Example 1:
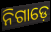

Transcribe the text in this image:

ନିଗାଡ଼େ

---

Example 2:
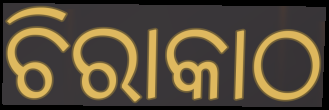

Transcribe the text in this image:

ଚିରାକାଠ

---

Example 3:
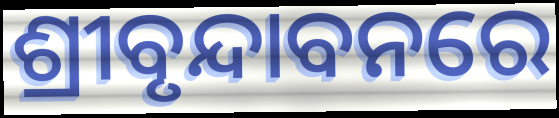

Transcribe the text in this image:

ଶ୍ରୀବୃନ୍ଦାବନରେ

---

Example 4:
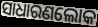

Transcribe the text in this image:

ସାଧାରଣଲୋକ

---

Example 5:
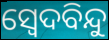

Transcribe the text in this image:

ସ୍ୱେଦବିନ୍ଦୁ